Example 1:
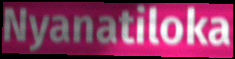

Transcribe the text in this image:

Nyanatiloka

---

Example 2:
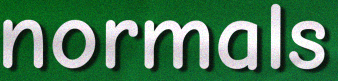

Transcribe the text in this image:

normals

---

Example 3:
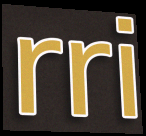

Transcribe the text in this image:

rri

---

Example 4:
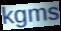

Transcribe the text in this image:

kgms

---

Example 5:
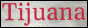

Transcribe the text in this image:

Tijuana